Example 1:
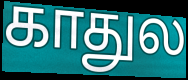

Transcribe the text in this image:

காதுல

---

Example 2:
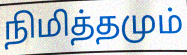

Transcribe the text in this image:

நிமித்தமும்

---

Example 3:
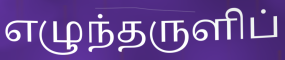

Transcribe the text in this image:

எழுந்தருளிப்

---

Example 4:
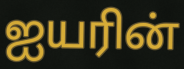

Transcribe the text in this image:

ஐயரின்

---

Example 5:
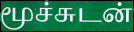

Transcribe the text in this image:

மூச்சுடன்